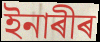
ইনাৰীৰ